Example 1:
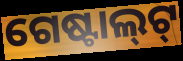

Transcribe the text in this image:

ଗେଷ୍ଟାଲ୍‌ଟ୍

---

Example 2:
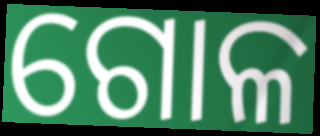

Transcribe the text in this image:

ଗୋଳ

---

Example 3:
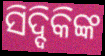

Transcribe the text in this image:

ସିଦ୍ଦିକିଙ୍କ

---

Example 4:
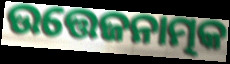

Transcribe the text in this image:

ଉତ୍ତେଜନାତ୍ମକ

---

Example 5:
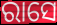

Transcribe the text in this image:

ରାସେ